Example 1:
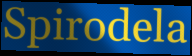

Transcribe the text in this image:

Spirodela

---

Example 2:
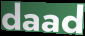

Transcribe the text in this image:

daad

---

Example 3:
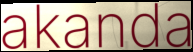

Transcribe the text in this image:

akanda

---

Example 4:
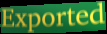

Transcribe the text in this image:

Exported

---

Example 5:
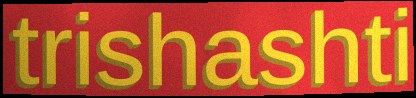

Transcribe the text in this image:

trishashti